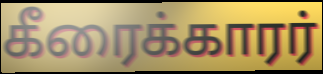
கீரைக்காரர்